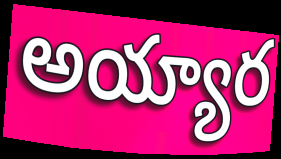
అయ్యార